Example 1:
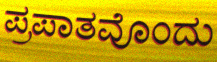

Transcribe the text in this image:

ಪ್ರಪಾತವೊಂದು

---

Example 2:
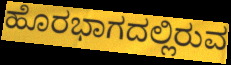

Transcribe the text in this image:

ಹೊರಭಾಗದಲ್ಲಿರುವ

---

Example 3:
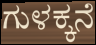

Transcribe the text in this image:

ಗುಳಕ್ಕನೆ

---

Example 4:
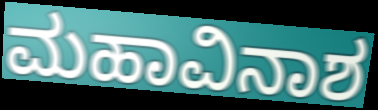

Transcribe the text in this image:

ಮಹಾವಿನಾಶ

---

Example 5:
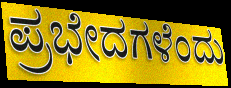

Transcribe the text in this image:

ಪ್ರಭೇದಗಳೆಂದು